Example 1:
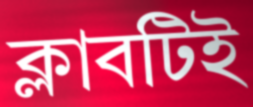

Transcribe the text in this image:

ক্লাবটিই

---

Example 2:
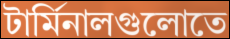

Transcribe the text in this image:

টার্মিনালগুলোতে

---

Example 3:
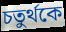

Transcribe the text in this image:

চতুর্থকে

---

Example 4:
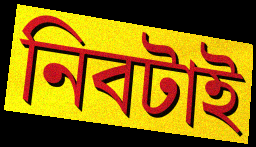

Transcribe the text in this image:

নিবটাই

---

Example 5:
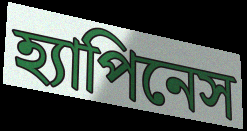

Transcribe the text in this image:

হ্যাপিনেস